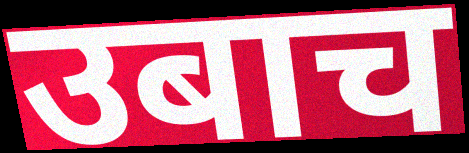
उबाच